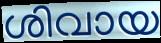
ശിവായ